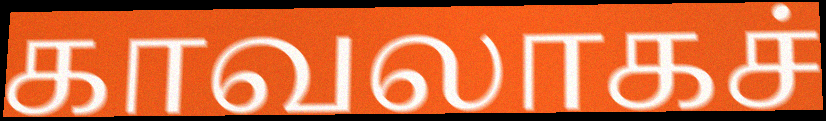
காவலாகச்